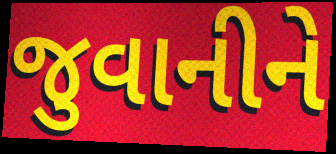
જુવાનીને